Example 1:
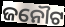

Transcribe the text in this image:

ଜନୌଟ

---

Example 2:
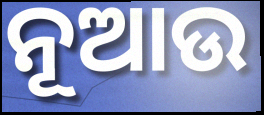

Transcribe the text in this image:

ନୂଆଉ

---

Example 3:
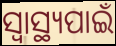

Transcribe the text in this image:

ସ୍ଵାସ୍ଥ୍ୟପାଇଁ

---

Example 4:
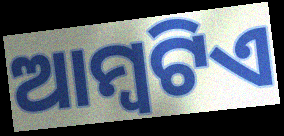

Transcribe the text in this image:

ଆମ୍ବଟିଏ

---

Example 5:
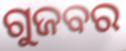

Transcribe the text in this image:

ଗୁଜବର